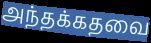
அந்தக்கதவை